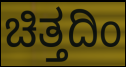
ಚಿತ್ತದಿಂ